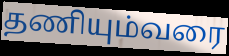
தணியும்வரை